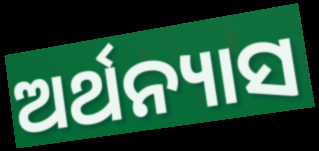
ଅର୍ଥନ୍ୟାସ